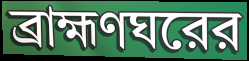
ব্রাহ্মণঘরের